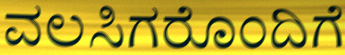
ವಲಸಿಗರೊಂದಿಗೆ